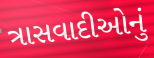
ત્રાસવાદીઓનું